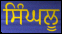
ਸਿੰਘਲੂ